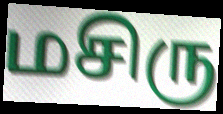
மசிரு